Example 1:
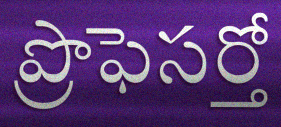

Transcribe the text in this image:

ప్రొఫెసర్తో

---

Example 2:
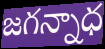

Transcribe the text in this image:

జగన్నాధ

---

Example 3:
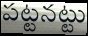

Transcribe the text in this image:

పట్టనట్టు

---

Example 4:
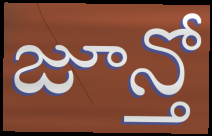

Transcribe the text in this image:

జూన్తో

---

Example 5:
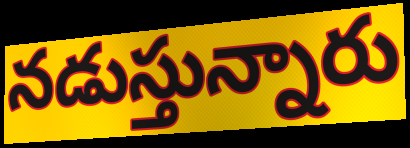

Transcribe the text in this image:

నడుస్తున్నారు